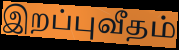
இறப்புவீதம்